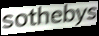
sothebys